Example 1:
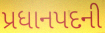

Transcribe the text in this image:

પ્રધાનપદની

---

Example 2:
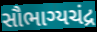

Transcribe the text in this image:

સૌભાગ્યચંદ્ર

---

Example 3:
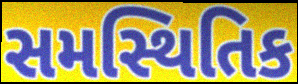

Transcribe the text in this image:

સમસ્થિતિક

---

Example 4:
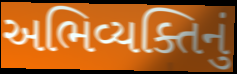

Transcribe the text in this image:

અભિવ્યક્તિનું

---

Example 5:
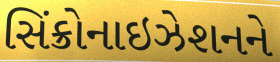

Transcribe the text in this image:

સિંક્રોનાઇઝેશનને